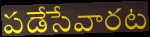
పడేసేవారట